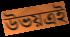
উভয়ত্রই